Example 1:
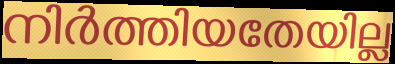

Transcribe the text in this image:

നിർത്തിയതേയില്ല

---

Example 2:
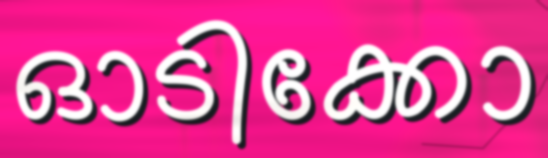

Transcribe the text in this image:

ഓടിക്കോ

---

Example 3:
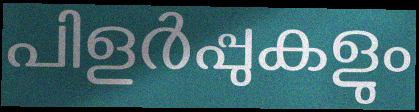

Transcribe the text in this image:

പിളർപ്പുകളും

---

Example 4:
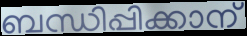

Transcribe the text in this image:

ബന്ധിപ്പിക്കാന്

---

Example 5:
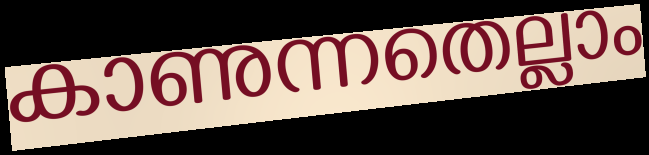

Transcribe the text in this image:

കാണുന്നതെല്ലാം